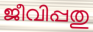
ജീവിപ്പതു